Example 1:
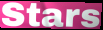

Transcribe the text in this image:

Stars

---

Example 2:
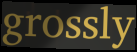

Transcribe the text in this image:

grossly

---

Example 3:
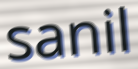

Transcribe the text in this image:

sanil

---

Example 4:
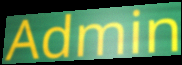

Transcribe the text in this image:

Admin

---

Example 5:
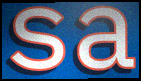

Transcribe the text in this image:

sa